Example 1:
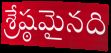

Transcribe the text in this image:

శ్రేష్ఠమైనది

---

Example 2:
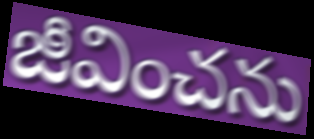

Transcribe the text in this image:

జీవించను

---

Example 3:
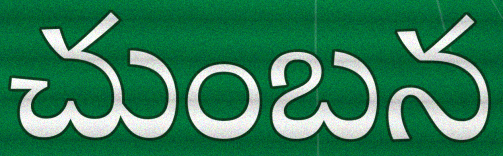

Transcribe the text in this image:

చుంబన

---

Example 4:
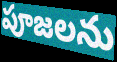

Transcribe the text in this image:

పూజలను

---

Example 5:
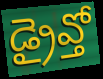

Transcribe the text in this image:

డ్రైవ్తో